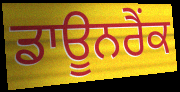
ਡਾਊਨਰੈਂਕ